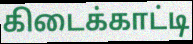
கிடைக்காட்டி